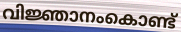
വിജ്ഞാനംകൊണ്ട്